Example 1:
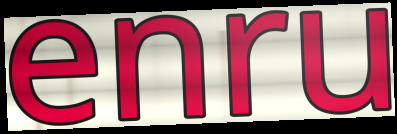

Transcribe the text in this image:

enru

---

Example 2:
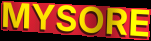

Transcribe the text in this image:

MYSORE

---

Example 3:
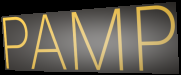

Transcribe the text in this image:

PAMP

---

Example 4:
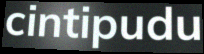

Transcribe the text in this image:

cintipudu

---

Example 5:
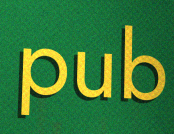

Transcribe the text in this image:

pub